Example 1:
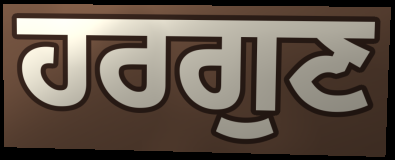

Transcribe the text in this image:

ਹਰਗੁਣ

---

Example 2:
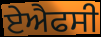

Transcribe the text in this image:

ਏਐਫਸੀ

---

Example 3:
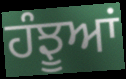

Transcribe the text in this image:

ਹੰਝੂਆਂ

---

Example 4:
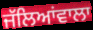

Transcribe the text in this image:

ਜੱਲਿਆਂਵਾਲਾ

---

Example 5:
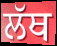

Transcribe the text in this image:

ਲੱਥ